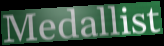
Medallist